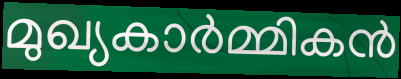
മുഖ്യകാർമ്മികൻ